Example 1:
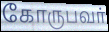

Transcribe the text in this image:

கோருபவர்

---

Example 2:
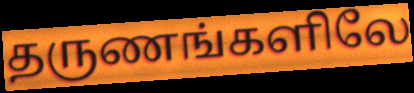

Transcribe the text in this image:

தருணங்களிலே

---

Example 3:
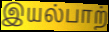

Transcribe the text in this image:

இயல்பாற்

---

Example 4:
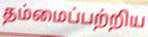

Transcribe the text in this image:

தம்மைப்பற்றிய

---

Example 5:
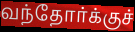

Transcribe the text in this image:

வந்தோர்க்குச்